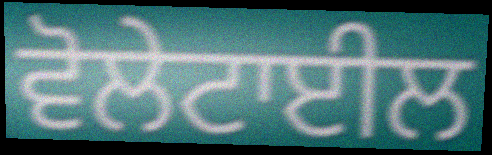
ਵੋਲੇਟਾਈਲ